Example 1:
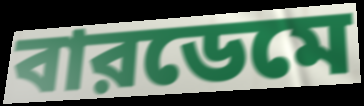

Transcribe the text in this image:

বারডেমে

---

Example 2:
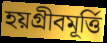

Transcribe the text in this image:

হয়গ্রীবমূর্ত্তি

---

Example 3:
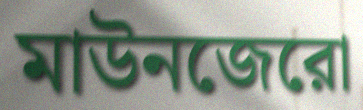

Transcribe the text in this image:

মাউনজেরো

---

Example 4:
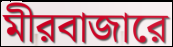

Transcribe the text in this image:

মীরবাজারে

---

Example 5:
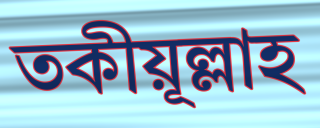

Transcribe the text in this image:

তকীয়ূল্লাহ